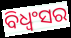
ବିଧ୍ୱଂସର